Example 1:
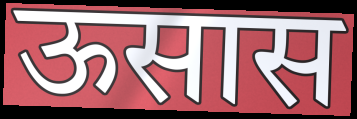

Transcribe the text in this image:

ऊसास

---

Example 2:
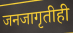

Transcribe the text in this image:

जनजागृतीही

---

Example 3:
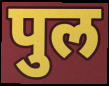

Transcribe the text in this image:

पुल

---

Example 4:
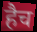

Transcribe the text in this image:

हैच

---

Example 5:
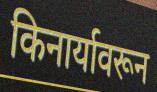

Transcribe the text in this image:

किनार्यावरून